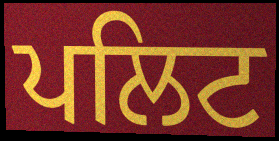
ਪਲਿਟ